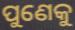
ପୁଣେକୁ